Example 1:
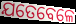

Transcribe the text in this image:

ଯତେବେଳେ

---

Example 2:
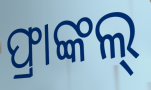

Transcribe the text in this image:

ଫ୍ରାଙ୍କଲ୍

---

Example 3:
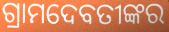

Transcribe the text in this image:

ଗ୍ରାମଦେବତୀଙ୍କର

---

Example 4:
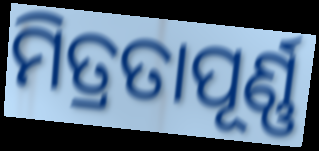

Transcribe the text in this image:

ମିତ୍ରତାପୂର୍ଣ୍ଣ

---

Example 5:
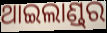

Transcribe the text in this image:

ଥାଇଲାଣ୍ଡ୍‌ର